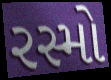
રસ્મો